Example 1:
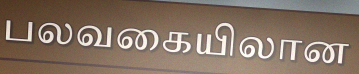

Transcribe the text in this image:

பலவகையிலான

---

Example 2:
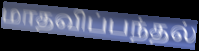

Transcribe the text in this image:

மாதவிப்பந்தல்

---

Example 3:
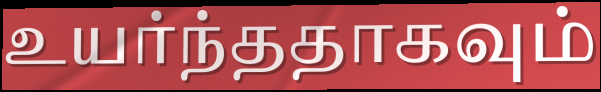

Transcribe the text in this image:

உயர்ந்ததாகவும்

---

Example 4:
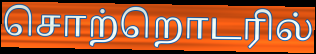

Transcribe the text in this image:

சொற்றொடரில்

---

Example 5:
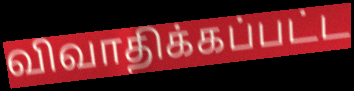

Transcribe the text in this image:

விவாதிக்கப்பட்ட